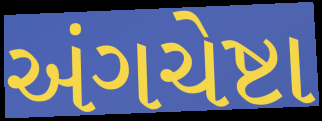
અંગચેષ્ટા